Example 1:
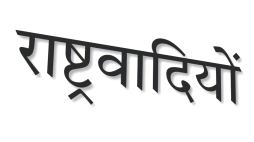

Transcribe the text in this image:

राष्ट्रवादियों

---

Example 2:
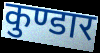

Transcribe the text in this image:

कुण्डार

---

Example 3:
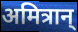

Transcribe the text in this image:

अमित्रान्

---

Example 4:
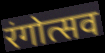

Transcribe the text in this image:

रंगोत्सव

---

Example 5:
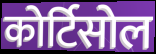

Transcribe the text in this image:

कोर्टिसोल